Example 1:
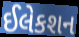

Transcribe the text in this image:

ઈલેકશન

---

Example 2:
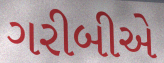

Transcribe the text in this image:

ગરીબીએ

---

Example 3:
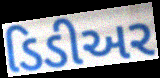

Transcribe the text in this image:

ડિડીઅર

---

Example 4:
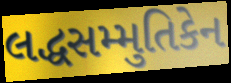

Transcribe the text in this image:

લદ્ધસમ્મુતિકેન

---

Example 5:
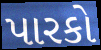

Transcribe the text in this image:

પારકો